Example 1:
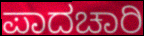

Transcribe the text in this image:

ಪಾದಚಾರಿ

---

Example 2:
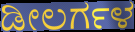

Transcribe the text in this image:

ಡೀಲರ್ಗಳ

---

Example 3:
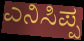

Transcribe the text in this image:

ಎನಿಸಿಪ್ಪ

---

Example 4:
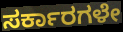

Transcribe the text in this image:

ಸರ್ಕಾರಗಳೇ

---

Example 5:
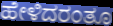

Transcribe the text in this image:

ಹೇಳಿದರಂತೂ